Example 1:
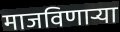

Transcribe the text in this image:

माजविणाऱ्या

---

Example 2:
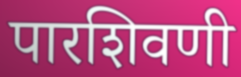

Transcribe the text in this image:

पारशिवणी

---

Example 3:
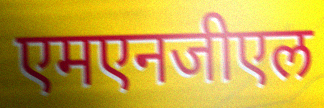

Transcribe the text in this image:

एमएनजीएल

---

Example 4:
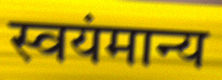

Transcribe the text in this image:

स्वयंमान्य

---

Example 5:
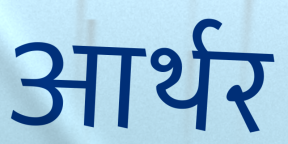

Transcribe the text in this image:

आर्थर